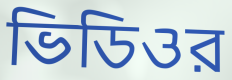
ভিডিওর